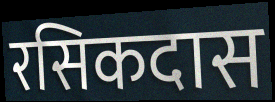
रसिकदास